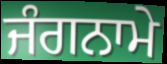
ਜੰਗਨਾਮੇ